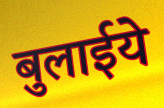
बुलाईये